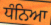
ਧੰਨਿਆ